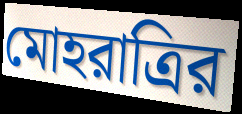
মোহরাত্রির